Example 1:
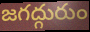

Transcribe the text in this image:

జగద్గురుం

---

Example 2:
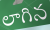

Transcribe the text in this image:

లాగిన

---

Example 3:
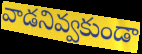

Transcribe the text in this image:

వాడనివ్వకుండా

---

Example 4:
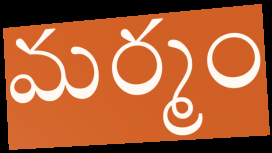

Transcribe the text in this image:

మర్మం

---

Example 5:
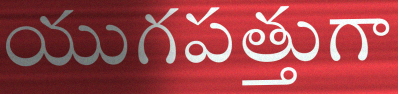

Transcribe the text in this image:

యుగపత్తుగా